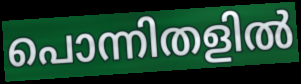
പൊന്നിതളിൽ